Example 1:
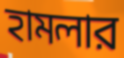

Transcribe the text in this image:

হামলার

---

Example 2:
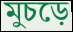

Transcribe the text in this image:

মুচড়ে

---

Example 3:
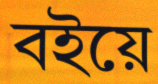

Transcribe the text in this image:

বইয়ে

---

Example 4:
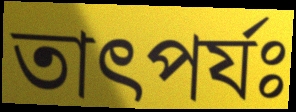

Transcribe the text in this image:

তাৎপর্যঃ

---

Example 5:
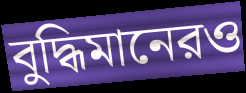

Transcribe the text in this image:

বুদ্ধিমানেরও